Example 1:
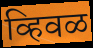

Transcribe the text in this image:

व्हिवळ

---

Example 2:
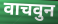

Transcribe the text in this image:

वाचवुन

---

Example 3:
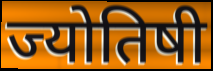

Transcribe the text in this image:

ज्योतिषी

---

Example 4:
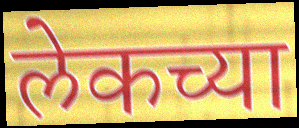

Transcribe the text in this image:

लेकच्या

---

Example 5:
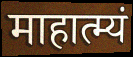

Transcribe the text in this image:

माहात्म्यं